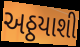
અઠ્ઠયાશી